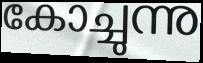
കോച്ചുന്നു